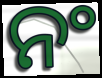
ନଂ